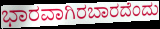
ಭಾರವಾಗಿರಬಾರದೆಂದು